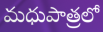
మధుపాత్రలో